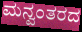
ಮನ್ವಂತರದ